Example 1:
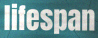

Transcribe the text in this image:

lifespan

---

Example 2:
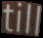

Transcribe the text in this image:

till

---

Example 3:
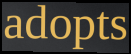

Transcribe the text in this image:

adopts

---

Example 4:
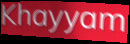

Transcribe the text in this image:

Khayyam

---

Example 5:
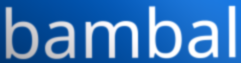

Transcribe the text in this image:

bambal